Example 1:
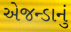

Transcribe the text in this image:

એજન્ડાનું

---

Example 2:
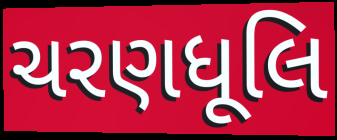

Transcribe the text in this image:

ચરણધૂલિ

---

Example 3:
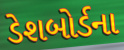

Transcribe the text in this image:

ડેશબોર્ડના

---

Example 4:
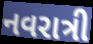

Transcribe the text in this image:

નવરાત્રી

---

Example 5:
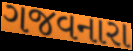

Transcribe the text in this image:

ગજવનારા